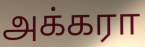
அக்கரா